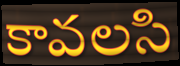
కావలసి